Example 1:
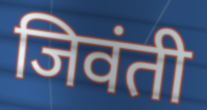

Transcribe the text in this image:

जिवंती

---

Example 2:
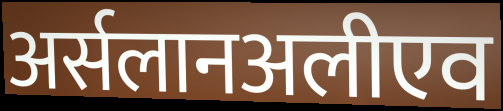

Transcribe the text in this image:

अर्सलानअलीएव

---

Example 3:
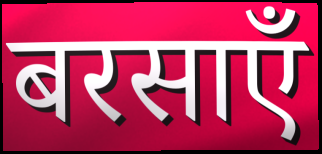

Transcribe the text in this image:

बरसाएँ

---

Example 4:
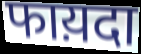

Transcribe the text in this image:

फाय़दा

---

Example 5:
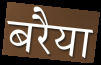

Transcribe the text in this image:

बरैया